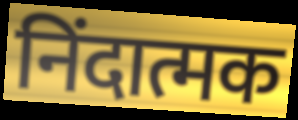
निंदात्मक